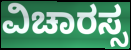
ವಿಚಾರಸ್ಸ